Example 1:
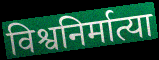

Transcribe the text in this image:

विश्वनिर्मात्या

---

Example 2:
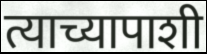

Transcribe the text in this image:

त्याच्यापाशी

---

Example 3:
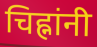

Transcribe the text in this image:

चिह्नांनी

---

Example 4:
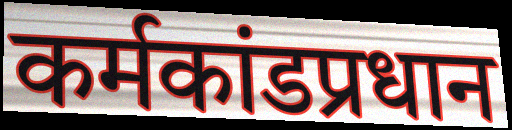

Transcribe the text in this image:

कर्मकांडप्रधान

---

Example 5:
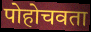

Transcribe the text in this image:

पोहोचवता